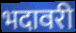
भदावरी